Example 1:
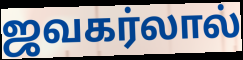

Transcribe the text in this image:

ஜவகர்லால்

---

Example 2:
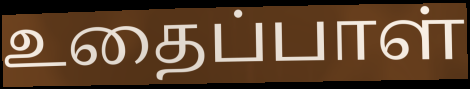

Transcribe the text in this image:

உதைப்பாள்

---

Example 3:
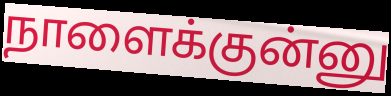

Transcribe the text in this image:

நாளைக்குன்னு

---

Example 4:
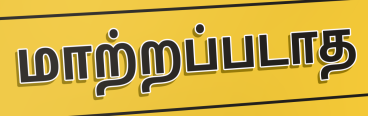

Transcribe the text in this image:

மாற்றப்படாத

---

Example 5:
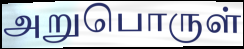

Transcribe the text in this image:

அறுபொருள்